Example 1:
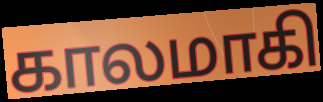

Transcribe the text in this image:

காலமாகி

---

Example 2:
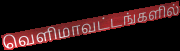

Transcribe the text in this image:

வெளிமாவட்டங்களில்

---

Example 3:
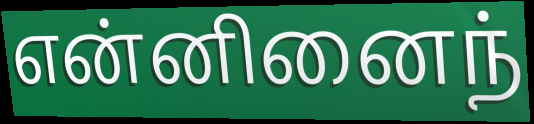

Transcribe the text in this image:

என்னினைந்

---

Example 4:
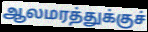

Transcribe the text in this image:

ஆலமரத்துக்குச்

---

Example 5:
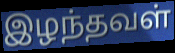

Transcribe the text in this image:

இழந்தவள்